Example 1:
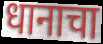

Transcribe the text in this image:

धानाचा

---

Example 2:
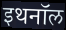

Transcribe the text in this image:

इथनॉल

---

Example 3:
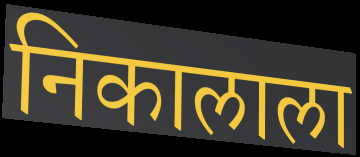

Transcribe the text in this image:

निकालाला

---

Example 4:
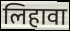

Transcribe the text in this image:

लिहावा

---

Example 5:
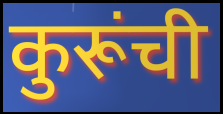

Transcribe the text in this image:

कुरूंची